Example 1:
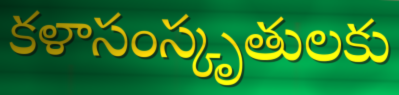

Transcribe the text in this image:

కళాసంస్కృతులకు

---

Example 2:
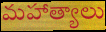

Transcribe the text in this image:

మహాత్యాలు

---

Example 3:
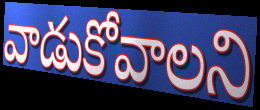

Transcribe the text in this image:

వాడుకోవాలని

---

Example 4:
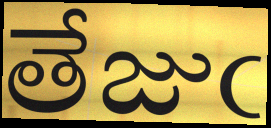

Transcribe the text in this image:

తేజుఁ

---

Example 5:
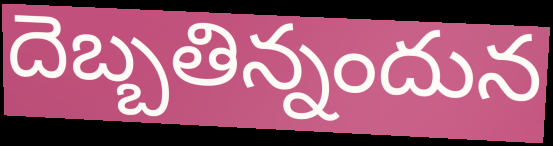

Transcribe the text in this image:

దెబ్బతిన్నందున